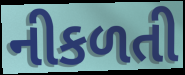
નીકળતી